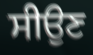
ਸੀਉਣ